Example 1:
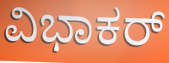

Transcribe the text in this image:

ವಿಭಾಕರ್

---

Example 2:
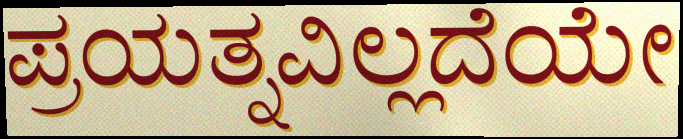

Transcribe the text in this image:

ಪ್ರಯತ್ನವಿಲ್ಲದೆಯೇ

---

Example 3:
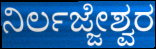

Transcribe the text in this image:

ನಿರ್ಲಜ್ಜೇಶ್ವರ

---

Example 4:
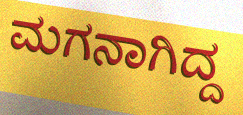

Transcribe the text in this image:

ಮಗನಾಗಿದ್ದ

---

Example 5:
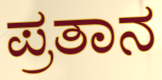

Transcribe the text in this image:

ಪ್ರತಾನ